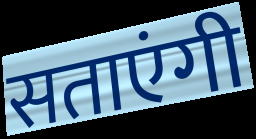
सताएंगी